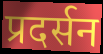
प्रदर्सन